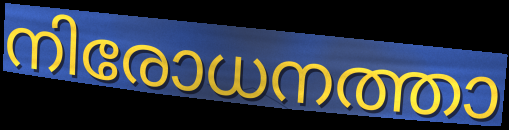
നിരോധനത്താ